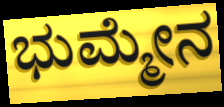
ಭುಮ್ಮೇನ